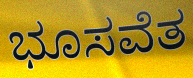
ಭೂಸವೆತ